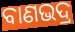
ବାଣଭଦ୍ର